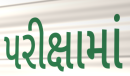
પરીક્ષામાં